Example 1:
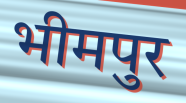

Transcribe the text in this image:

भीमपुर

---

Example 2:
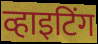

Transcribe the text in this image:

व्हाइटिंग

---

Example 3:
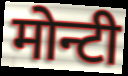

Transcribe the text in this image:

मोन्टी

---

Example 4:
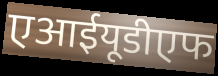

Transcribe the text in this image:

एआईयूडीएफ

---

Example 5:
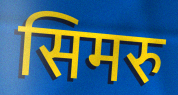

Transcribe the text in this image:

सिमरु